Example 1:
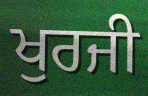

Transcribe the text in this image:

ਖੁਰਜੀ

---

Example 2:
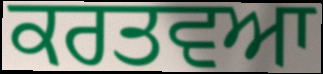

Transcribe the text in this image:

ਕਰਤਵਆ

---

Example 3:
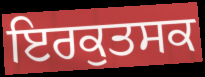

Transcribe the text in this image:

ਇਰਕੁਤਸਕ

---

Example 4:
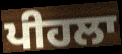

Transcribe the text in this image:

ਪੀਹਲਾ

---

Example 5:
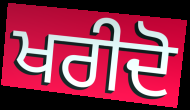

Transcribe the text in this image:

ਖਰੀਦੋ